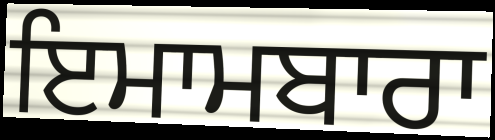
ਇਮਾਮਬਾਰਾ